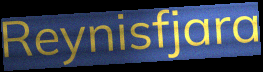
Reynisfjara